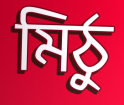
মিঠু